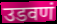
उडवणं